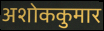
अशोककुमार